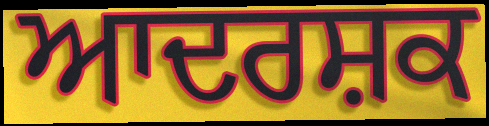
ਆਦਰਸ਼ਕ